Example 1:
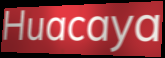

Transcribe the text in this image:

Huacaya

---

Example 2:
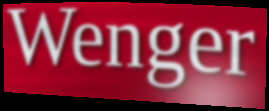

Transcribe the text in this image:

Wenger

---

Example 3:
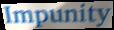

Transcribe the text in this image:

Impunity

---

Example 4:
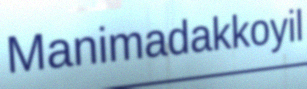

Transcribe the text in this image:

Manimadakkoyil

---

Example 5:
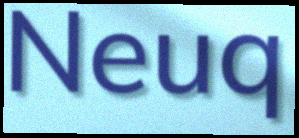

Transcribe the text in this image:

Neuq